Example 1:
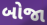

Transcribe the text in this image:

બોજા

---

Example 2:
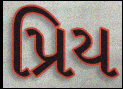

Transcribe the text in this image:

પ્રિય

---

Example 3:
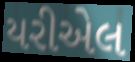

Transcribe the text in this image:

યરીએલ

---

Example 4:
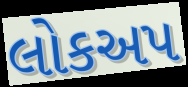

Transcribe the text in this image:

લોકઅપ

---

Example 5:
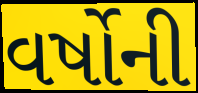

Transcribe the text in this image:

વર્ષોની